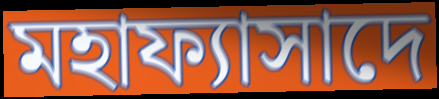
মহাফ্যাসাদে